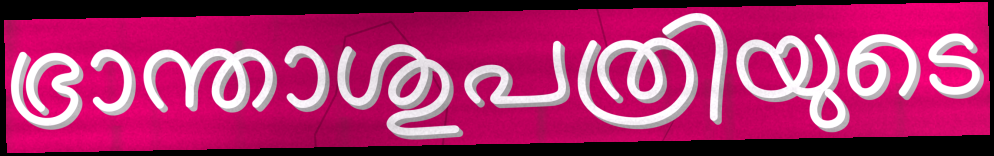
ഭ്രാന്താശുപത്രിയുടെ